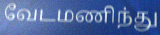
வேடமணிந்து